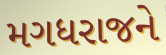
મગધરાજને